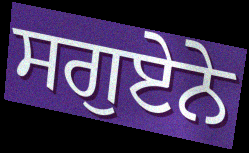
ਸਗੁਏਨੇ